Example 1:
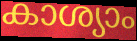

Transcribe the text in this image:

കാശ്യാം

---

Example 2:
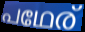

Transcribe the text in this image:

പഥേര്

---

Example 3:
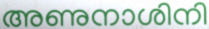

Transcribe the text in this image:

അണുനാശിനി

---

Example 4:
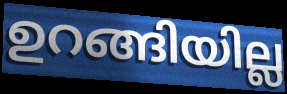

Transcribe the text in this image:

ഉറങ്ങിയില്ല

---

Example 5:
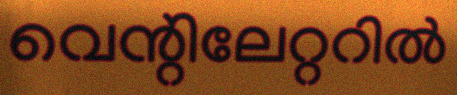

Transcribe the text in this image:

വെന്റിലേറ്ററിൽ